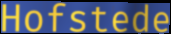
Hofstede